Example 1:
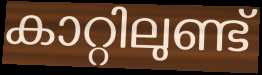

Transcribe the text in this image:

കാറ്റിലുണ്ട്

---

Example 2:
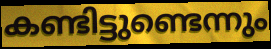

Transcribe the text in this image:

കണ്ടിട്ടുണ്ടെന്നും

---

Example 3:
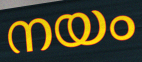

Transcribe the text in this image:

നയം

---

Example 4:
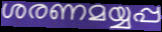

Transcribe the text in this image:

ശരണമയ്യപ്പ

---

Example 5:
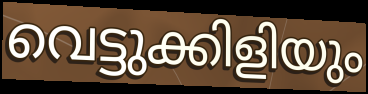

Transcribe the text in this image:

വെട്ടുക്കിളിയും